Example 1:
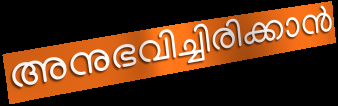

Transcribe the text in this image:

അനുഭവിച്ചിരിക്കാൻ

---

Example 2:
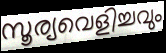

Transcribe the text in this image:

സൂര്യവെളിച്ചവും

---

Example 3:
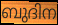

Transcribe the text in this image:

ബുദിന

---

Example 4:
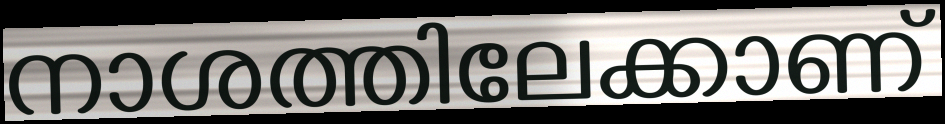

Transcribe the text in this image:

നാശത്തിലേക്കാണ്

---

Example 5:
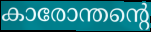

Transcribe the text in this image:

കാരോന്തന്റെ